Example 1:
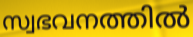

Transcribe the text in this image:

സ്വഭവനത്തിൽ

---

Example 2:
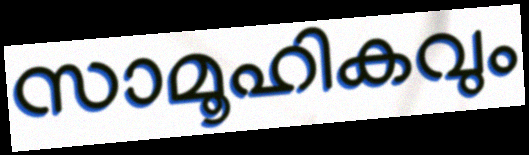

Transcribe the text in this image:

സാമൂഹികവും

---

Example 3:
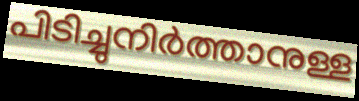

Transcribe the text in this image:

പിടിച്ചുനിർത്താനുള്ള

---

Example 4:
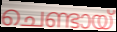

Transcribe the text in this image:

ചെണ്ടായ്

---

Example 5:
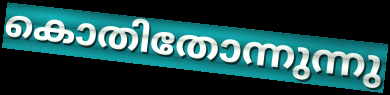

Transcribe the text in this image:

കൊതിതോന്നുന്നു